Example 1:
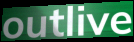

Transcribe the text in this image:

outlive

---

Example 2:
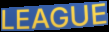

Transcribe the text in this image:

LEAGUE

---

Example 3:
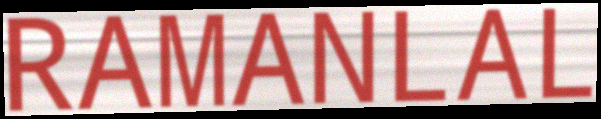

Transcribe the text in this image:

RAMANLAL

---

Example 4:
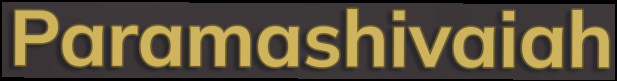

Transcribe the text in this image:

Paramashivaiah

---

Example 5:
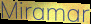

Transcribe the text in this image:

Miramar